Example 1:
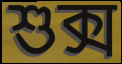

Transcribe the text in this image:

শুক্স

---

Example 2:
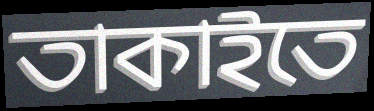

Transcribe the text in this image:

তাকাইতে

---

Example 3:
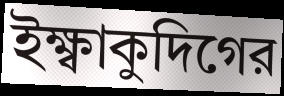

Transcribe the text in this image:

ইক্ষ্বাকুদিগের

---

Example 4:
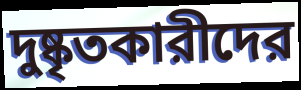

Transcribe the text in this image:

দুষ্কৃতকারীদের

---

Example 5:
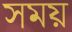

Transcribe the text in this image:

সময়